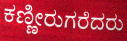
ಕಣ್ಣೀರುಗರೆದರು